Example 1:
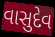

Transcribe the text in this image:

વાસુદેવ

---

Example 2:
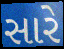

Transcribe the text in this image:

સારે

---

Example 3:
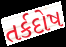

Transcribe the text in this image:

તર્કદોષ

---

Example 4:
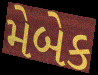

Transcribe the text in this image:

મેબેક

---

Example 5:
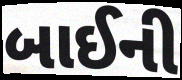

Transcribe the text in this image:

બાઈની